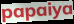
papaiya